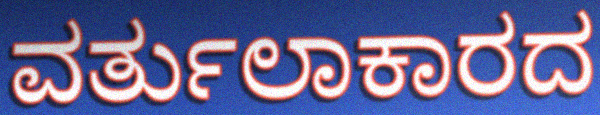
ವರ್ತುಲಾಕಾರದ